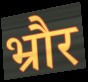
भ्रौर